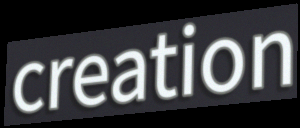
creation